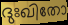
ദുഃഖിതോ